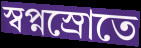
স্বপ্নস্রোতে